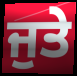
ਜੁਤੇ